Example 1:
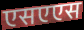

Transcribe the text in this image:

एसएएस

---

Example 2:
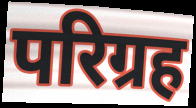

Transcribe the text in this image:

परिग्रह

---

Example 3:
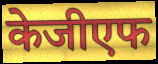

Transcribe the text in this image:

केजीएफ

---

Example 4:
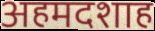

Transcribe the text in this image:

अहमदशाह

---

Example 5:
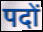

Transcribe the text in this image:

पदों